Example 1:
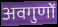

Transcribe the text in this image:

अवगुणों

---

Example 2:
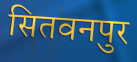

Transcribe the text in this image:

सितवनपुर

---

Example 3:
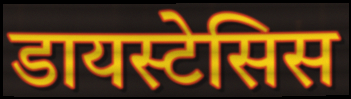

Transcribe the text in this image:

डायस्टेसिस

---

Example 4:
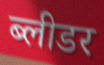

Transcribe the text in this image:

ब्लीडर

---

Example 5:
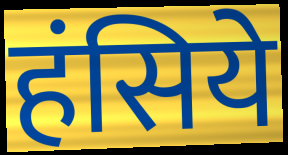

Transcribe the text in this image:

हंसिये